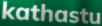
kathastu